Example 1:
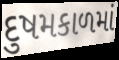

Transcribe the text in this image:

દુષમકાળમાં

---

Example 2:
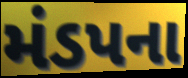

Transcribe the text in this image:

મંડપના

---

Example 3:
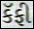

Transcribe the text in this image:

કૅફી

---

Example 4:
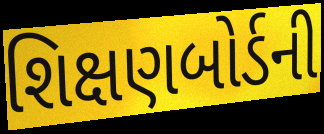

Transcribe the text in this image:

શિક્ષણબોર્ડની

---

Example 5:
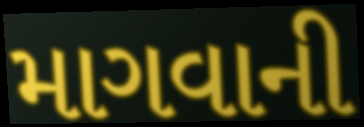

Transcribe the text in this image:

માગવાની